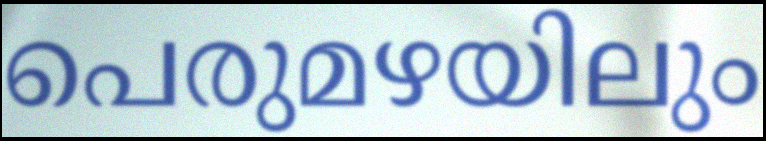
പെരുമഴയിലും